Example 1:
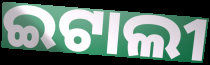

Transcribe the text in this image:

ଇଟାଲୀ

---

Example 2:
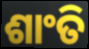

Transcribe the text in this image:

ଶାଂତି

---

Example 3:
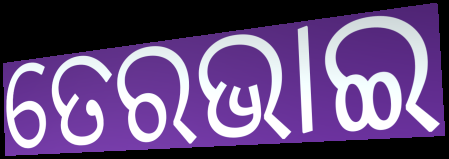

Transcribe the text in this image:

ତେରଭାଇ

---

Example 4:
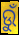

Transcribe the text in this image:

ଉୁଁ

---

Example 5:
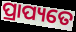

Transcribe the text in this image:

ପ୍ରାପ୍ୟତେ